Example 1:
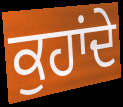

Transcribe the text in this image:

ਕੁਹਾਂਦੇ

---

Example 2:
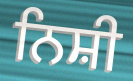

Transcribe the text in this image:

ਨਿਸ਼ੀ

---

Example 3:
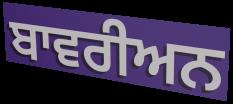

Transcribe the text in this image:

ਬਾਵਰੀਅਨ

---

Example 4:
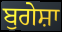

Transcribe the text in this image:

ਬੁਗੇਸ਼ਾ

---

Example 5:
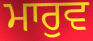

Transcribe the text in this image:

ਮਾਰੁਵ